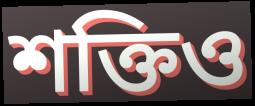
শক্তিও